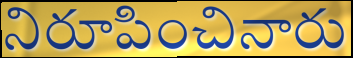
నిరూపించినారు